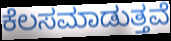
ಕೆಲಸಮಾಡುತ್ತವೆ